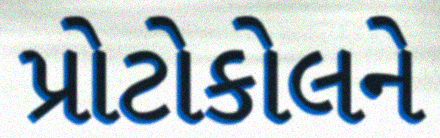
પ્રોટોકોલને